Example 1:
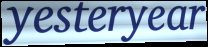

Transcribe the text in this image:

yesteryear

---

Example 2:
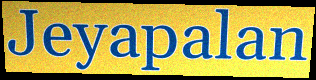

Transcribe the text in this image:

Jeyapalan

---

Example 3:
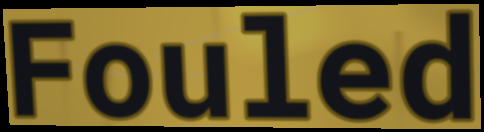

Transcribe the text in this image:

Fouled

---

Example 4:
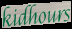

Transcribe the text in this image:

kidhours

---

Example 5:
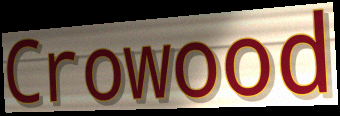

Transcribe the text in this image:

Crowood